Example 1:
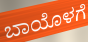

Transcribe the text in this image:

ಬಾಯೊಳಗೆ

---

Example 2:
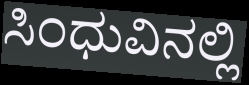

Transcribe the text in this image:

ಸಿಂಧುವಿನಲ್ಲಿ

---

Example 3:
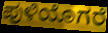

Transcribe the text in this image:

ಪುಳಿಯೊಗರೆ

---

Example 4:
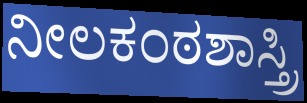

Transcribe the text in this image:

ನೀಲಕಂಠಶಾಸ್ತ್ರಿ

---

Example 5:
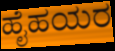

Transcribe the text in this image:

ಹೈಹಯರ